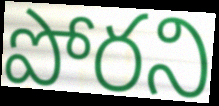
పోరని